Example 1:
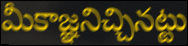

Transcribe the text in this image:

మీకాజ్ఞనిచ్చినట్టు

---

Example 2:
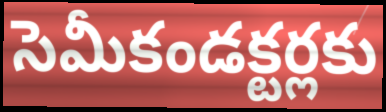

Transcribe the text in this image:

సెమీకండక్టర్లకు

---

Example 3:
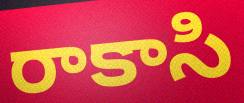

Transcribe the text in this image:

రాకాసి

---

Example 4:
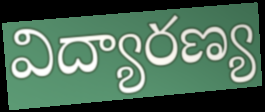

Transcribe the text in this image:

విద్యారణ్య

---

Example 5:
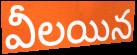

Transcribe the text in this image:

వీలయిన